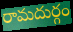
రామదుర్గం